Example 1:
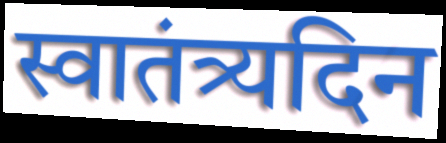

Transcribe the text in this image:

स्वातंत्र्यदिन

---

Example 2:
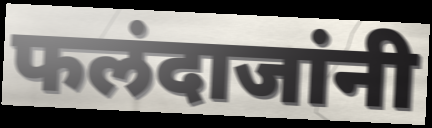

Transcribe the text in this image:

फलंदाजांनी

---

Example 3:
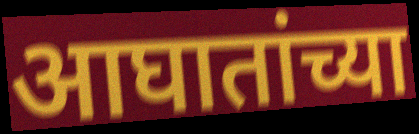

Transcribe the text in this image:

आघातांच्या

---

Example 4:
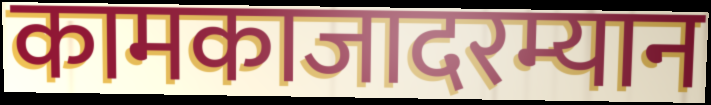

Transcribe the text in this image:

कामकाजादरम्यान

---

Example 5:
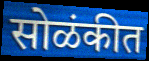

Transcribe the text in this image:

सोळंकीत